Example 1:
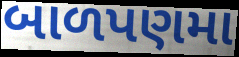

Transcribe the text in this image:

બાળપણમા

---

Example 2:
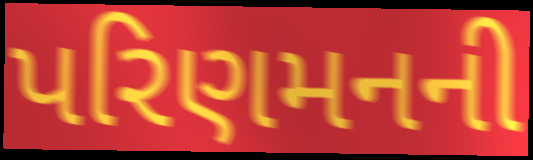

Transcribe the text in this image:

પરિણમનની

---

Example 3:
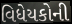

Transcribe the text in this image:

વિધેયકોની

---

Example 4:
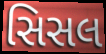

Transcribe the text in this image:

સિસલ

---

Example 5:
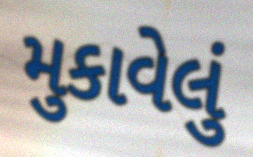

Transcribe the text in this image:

મુકાવેલું